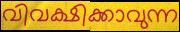
വിവക്ഷിക്കാവുന്ന